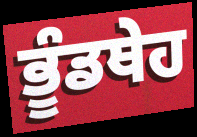
ਭੂੰਡਥੇਹ